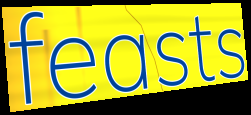
feasts